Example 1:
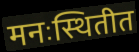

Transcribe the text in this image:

मनःस्थितीत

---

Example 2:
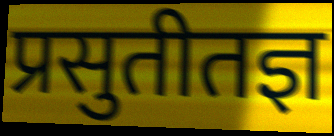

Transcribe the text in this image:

प्रसुतीतज्ञ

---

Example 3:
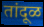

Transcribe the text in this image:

तांदूळ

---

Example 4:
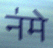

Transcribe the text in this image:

न॑मे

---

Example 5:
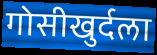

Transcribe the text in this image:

गोसीखुर्दला